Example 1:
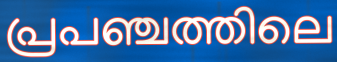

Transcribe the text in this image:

പ്രപഞ്ചത്തിലെ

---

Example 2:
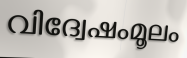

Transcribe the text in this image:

വിദ്വേഷംമൂലം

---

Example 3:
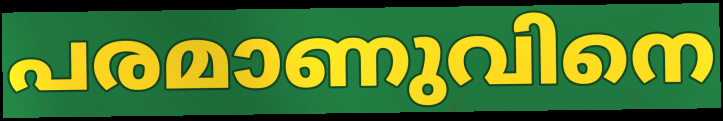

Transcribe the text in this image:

പരമാണുവിനെ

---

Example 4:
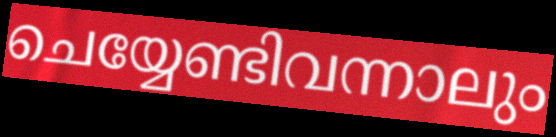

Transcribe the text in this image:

ചെയ്യേണ്ടിവന്നാലും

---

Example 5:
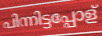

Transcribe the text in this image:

പിന്നിട്ടപ്പോള്